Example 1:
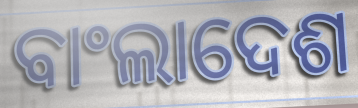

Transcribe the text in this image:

ବାଂଲାଦେଶ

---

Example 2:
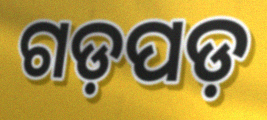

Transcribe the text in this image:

ଗଡ଼ପଡ଼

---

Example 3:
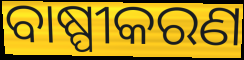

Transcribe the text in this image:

ବାଷ୍ପୀକରଣ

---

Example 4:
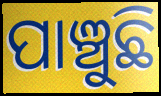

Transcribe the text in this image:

ପାଞ୍ଚୁଛି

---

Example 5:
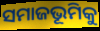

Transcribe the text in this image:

ସମାଜଭୂମିକୁ